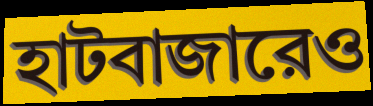
হাটবাজারেও